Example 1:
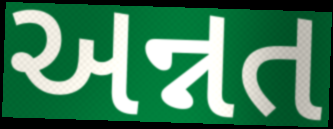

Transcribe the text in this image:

અન્નત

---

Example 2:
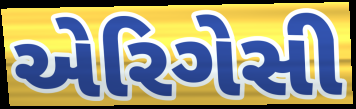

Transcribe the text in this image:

એરિગેસી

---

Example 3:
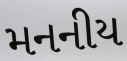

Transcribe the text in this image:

મનનીય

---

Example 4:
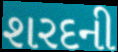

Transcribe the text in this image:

શરદની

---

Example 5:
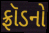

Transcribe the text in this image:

ફ્રૉડનો